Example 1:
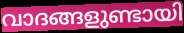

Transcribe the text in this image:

വാദങ്ങളുണ്ടായി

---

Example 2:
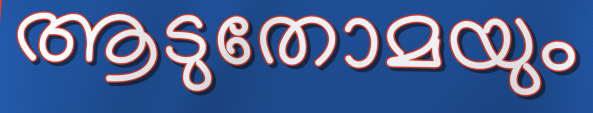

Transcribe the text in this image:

ആടുതോമയും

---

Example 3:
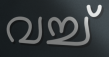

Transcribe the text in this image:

വച്ച്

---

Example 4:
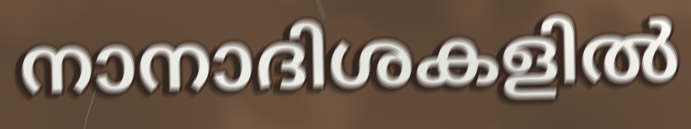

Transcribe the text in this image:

നാനാദിശകളിൽ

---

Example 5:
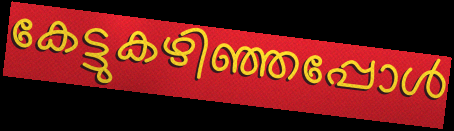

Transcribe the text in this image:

കേട്ടുകഴിഞ്ഞപ്പോൾ